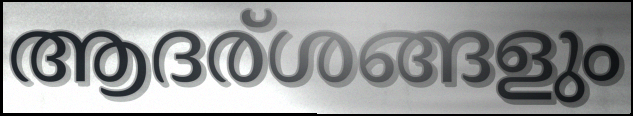
ആദര്ശങ്ങളും